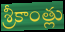
శ్రీకాంత్లు